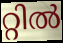
റ്റിൽ